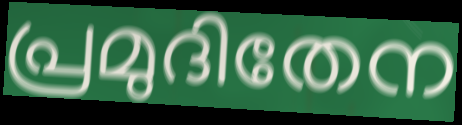
പ്രമുദിതേന